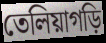
তেলিয়াগড়ি